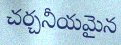
చర్చనీయమైన